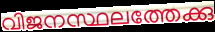
വിജനസ്ഥലത്തേക്കു